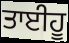
ਤਾਈਹੂ